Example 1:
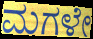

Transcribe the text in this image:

ಮಗಳೇ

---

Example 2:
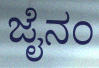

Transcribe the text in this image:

ಜೈನಂ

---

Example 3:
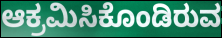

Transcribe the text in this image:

ಆಕ್ರಮಿಸಿಕೊಂಡಿರುವ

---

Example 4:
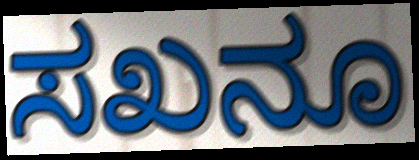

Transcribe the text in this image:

ಸಖನೂ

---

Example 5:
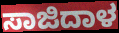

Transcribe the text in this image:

ಸಾಜಿದಾಳ